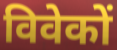
विवेकों